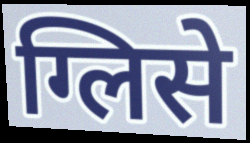
ग्लिसे